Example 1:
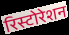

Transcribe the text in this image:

रिस्टोरेशन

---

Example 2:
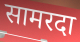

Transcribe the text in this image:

सामरदा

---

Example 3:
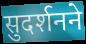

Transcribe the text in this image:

सुदर्शनने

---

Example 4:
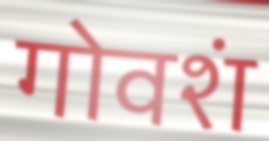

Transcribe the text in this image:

गोवशं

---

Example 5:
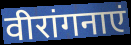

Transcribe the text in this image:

वीरांगनाएं